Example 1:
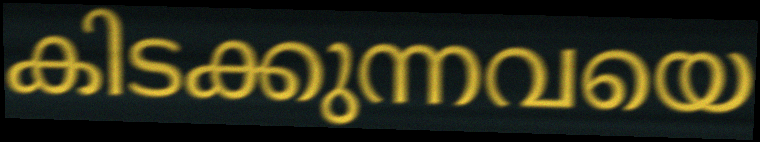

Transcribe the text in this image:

കിടക്കുന്നവയെ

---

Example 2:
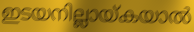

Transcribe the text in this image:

ഇടയനില്ലായ്കയാൽ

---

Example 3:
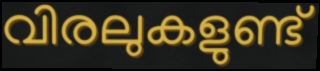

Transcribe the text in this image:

വിരലുകളുണ്ട്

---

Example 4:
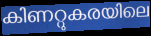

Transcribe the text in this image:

കിണറ്റുകരയിലെ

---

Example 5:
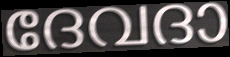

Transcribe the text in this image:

ദേവദാ